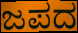
ಜಪದ